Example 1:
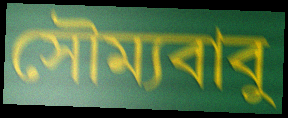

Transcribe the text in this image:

সৌম্যবাবু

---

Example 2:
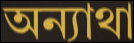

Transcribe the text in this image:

অন্যাথা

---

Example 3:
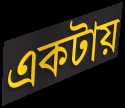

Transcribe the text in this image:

একটায়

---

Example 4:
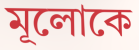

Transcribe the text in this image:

মূলোকে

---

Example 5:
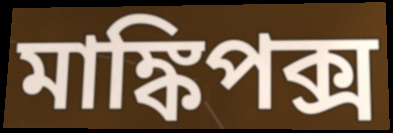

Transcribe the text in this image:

মাঙ্কিপক্স